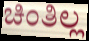
ಚಿಂತಿಲ್ಲ